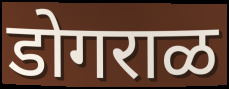
डोगराळ